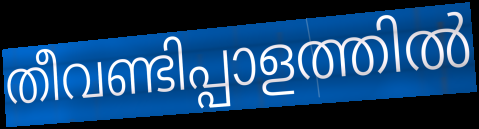
തീവണ്ടിപ്പാളത്തിൽ